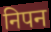
निपन